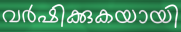
വർഷിക്കുകയായി